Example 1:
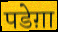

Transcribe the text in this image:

पडेग़ा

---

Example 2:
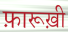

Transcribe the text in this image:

फ़ारूख़ी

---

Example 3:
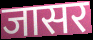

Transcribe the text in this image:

जासर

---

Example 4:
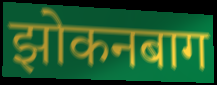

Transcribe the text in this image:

झोकनबाग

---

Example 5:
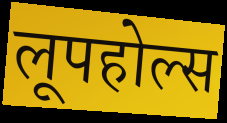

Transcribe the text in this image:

लूपहोल्स